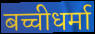
बच्चीधर्मा